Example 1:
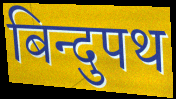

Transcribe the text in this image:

बिन्दुपथ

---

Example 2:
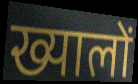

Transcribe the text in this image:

ख्यालों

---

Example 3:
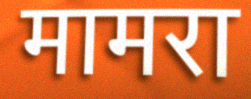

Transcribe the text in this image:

मामरा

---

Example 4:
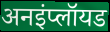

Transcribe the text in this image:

अनइंप्लॉयड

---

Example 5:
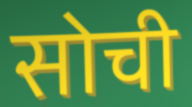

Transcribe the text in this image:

सोची